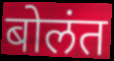
बोलंत